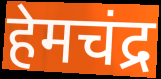
हेमचंद्र